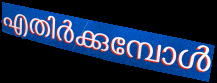
എതിർക്കുമ്പോൾ